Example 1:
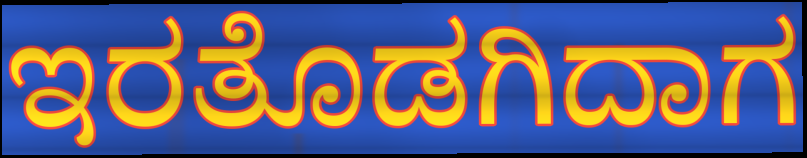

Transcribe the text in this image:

ಇರತೊಡಗಿದಾಗ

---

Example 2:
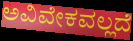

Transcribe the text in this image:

ಅವಿವೇಕವಲ್ಲದೆ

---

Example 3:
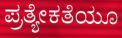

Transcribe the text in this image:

ಪ್ರತ್ಯೇಕತೆಯೂ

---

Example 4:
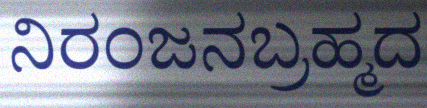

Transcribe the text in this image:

ನಿರಂಜನಬ್ರಹ್ಮದ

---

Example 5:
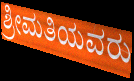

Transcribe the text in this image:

ಶ್ರೀಮತಿಯವರು